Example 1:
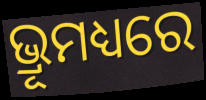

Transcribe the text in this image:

ଭ୍ରୂମଧ୍ୟରେ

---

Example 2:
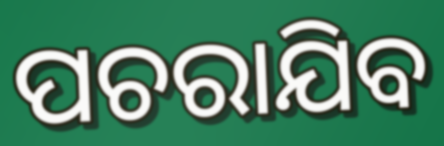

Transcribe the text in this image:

ପଚରାଯିବ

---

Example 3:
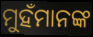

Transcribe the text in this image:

ମୁହଁମାନଙ୍କ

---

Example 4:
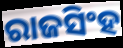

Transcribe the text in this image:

ରାଜସିଂହ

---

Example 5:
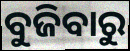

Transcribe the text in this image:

ବୁଜିବାରୁ